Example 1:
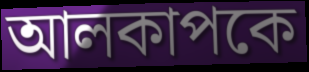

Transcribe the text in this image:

আলকাপকে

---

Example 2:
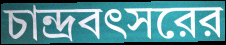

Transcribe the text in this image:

চান্দ্রবৎসরের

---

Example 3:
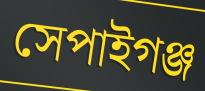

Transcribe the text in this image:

সেপাইগঞ্জ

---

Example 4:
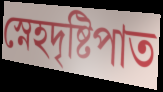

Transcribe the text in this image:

স্নেহদৃষ্টিপাত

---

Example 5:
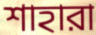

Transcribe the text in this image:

শাহারা